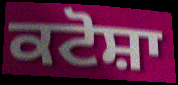
ਕਟੋਸ਼ਾ